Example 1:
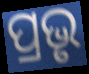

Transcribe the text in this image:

ପ୍ରଭୃ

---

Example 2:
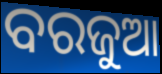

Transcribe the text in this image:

ବରଜୁଆ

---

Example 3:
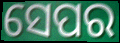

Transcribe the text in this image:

ସେପର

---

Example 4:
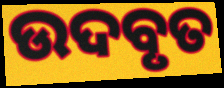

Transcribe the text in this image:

ଉଦବୃତ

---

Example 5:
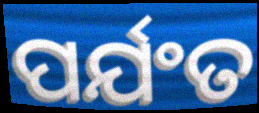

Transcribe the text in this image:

ପର୍ଯଂତ